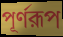
পূর্ণরূপ